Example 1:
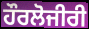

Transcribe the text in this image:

ਹੌਰਲੋਜੀਰੀ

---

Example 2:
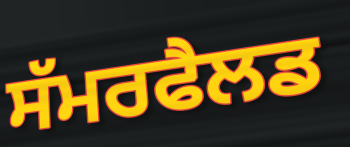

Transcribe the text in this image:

ਸੱਮਰਫੈਲਡ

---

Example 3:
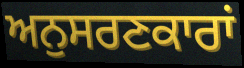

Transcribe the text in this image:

ਅਨੁਸਰਣਕਾਰਾਂ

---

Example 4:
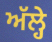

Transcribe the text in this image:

ਅੱਲ੍ਹੇ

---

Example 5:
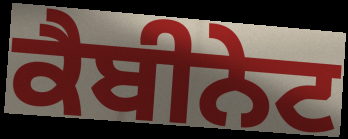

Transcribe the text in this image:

ਕੈਬੀਨੇਟ